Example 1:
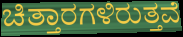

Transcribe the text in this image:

ಚಿತ್ತಾರಗಳಿರುತ್ತವೆ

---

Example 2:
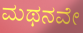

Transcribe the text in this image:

ಮಥನವೇ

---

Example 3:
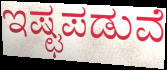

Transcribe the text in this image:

ಇಷ್ಟಪಡುವೆ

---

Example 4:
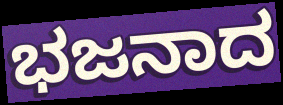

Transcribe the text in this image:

ಭಜನಾದ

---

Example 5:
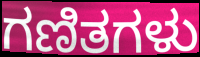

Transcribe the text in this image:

ಗಣಿತಗಳು